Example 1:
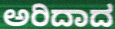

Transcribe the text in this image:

ಅರಿದಾದ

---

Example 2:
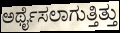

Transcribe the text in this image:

ಅರ್ಥೈಸಲಾಗುತ್ತಿತ್ತು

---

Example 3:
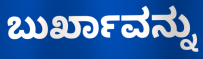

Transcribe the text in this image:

ಬುರ್ಖಾವನ್ನು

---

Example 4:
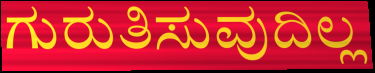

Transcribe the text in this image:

ಗುರುತಿಸುವುದಿಲ್ಲ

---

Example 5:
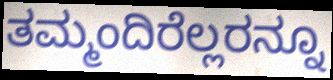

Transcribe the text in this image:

ತಮ್ಮಂದಿರೆಲ್ಲರನ್ನೂ